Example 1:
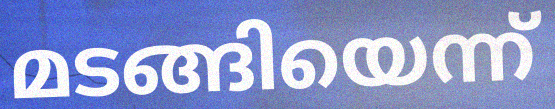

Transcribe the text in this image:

മടങ്ങിയെന്ന്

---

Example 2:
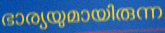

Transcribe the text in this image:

ഭാര്യയുമായിരുന്ന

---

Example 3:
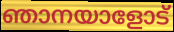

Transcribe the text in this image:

ഞാനയാളോട്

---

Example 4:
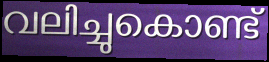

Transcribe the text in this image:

വലിച്ചുകൊണ്ട്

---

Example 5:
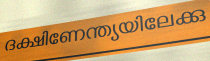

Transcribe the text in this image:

ദക്ഷിണേന്ത്യയിലേക്കു